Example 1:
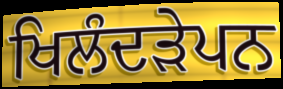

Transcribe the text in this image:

ਖਿਲੰਦੜੇਪਨ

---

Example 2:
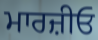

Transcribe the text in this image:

ਮਾਰਜ਼ੀਓ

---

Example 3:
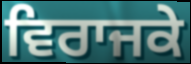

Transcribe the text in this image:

ਵਿਰਾਜਕੇ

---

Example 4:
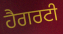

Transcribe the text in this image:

ਹੈਗਰਟੀ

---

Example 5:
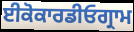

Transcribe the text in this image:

ਈਕੋਕਾਰਡੀਓਗ੍ਰਾਮ